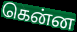
கென்ன